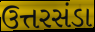
ઉત્તરસંડા